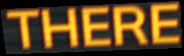
THERE